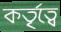
কর্তৃত্বে